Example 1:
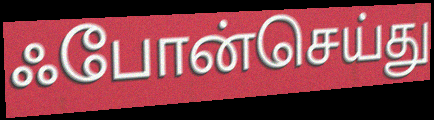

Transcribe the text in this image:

ஃபோன்செய்து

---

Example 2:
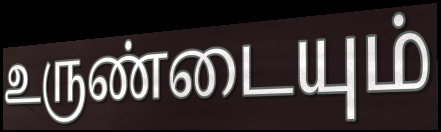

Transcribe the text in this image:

உருண்டையும்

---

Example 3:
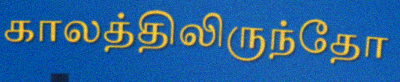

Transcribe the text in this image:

காலத்திலிருந்தோ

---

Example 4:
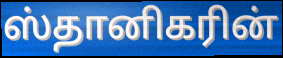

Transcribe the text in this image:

ஸ்தானிகரின்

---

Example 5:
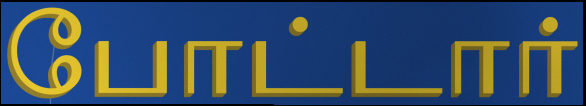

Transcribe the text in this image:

போட்டார்